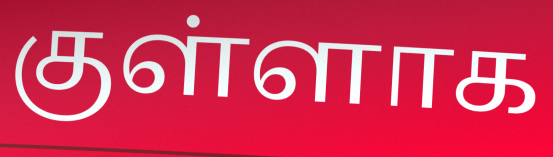
குள்ளாக